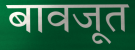
बावजूत